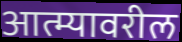
आत्म्यावरील